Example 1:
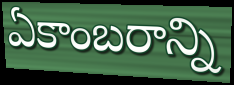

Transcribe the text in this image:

ఏకాంబరాన్ని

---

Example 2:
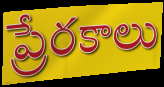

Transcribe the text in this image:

ప్రేరకాలు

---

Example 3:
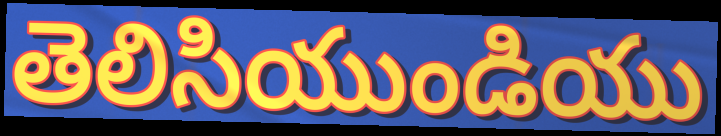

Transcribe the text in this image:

తెలిసియుండియు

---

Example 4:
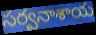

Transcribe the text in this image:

సర్వనాశాయ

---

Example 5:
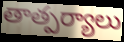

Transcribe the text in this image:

తాత్పర్యాలు